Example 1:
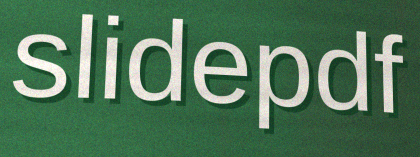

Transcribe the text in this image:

slidepdf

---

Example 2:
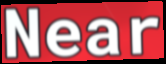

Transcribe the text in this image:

Near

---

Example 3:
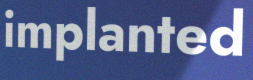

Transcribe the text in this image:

implanted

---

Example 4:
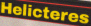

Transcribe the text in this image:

Helicteres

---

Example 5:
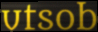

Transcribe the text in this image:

utsob